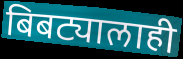
बिबट्यालाही